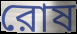
রোষ